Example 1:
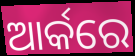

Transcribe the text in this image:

ଆର୍କରେ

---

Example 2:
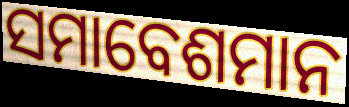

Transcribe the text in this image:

ସମାବେଶମାନ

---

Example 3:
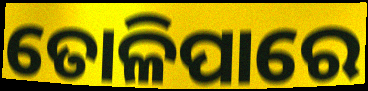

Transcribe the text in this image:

ତୋଳିପାରେ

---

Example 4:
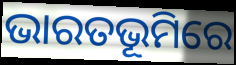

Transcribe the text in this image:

ଭାରତଭୂମିରେ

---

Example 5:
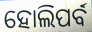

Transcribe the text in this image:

ହୋଲିପର୍ବ